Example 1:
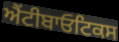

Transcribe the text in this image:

ਐਂਟੀਬਾਓਟਿਕਸ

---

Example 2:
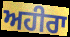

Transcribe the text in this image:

ਅਹੀਰਾ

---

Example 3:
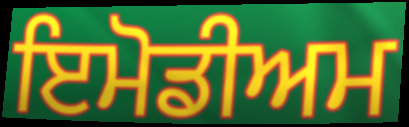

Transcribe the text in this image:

ਇਮੋਡੀਅਮ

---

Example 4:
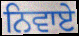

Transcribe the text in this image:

ਨਿਵਾਏ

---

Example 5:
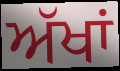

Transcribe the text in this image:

ਅੱਖਾਂ